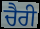
ਚੈਰੀ